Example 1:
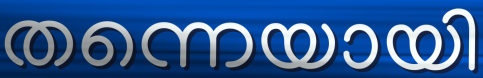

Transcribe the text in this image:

തന്നെയായി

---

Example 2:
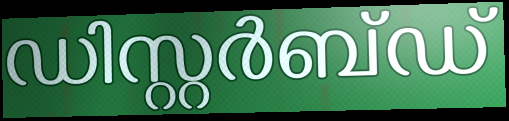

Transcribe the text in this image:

ഡിസ്റ്റർബ്ഡ്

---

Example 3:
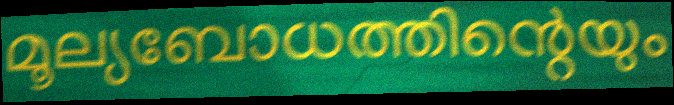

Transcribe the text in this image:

മൂല്യബോധത്തിന്റെയും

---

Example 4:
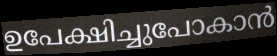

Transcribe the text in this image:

ഉപേക്ഷിച്ചുപോകാൻ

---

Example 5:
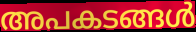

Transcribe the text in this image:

അപകടങ്ങൾ